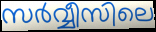
സർവ്വീസിലെ